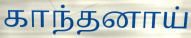
காந்தனாய்